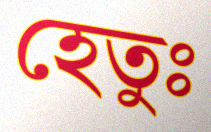
হেতুঃ